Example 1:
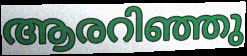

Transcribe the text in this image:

ആരറിഞ്ഞു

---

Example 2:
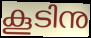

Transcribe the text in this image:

കൂടിനു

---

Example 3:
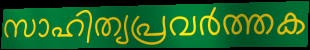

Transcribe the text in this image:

സാഹിത്യപ്രവർത്തക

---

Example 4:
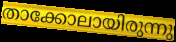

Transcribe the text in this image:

താക്കോലായിരുന്നു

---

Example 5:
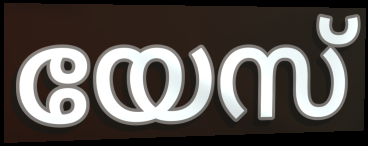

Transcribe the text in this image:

യേസ്